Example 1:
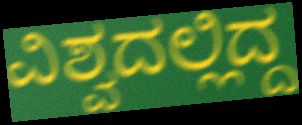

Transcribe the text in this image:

ವಿಶ್ವದಲ್ಲಿದ್ದ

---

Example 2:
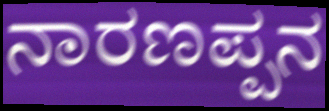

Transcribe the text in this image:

ನಾರಣಪ್ಪನ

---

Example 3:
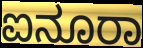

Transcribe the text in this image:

ಐನೂರಾ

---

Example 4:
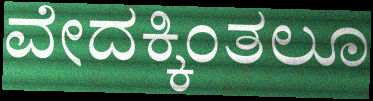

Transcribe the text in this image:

ವೇದಕ್ಕಿಂತಲೂ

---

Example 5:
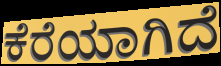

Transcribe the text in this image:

ಕೆರೆಯಾಗಿದೆ